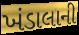
ખંડાલાની